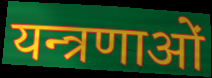
यन्त्रणाओं